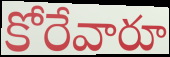
కోరేవారూ